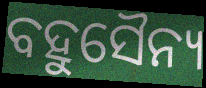
ବହୁସୈନ୍ୟ